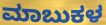
ಮಾಬುಕಳ